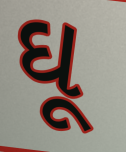
ઘૂ